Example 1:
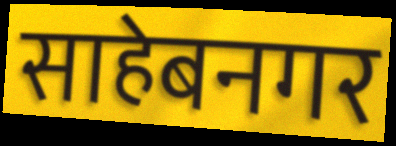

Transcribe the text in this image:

साहेबनगर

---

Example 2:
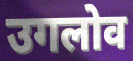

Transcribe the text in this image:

उगलोव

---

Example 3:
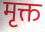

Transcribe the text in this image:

मृक्त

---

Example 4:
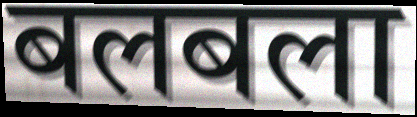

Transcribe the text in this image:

बलबला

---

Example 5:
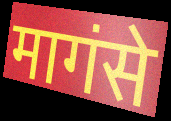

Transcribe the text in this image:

मागंसे